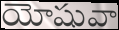
యోషువా